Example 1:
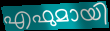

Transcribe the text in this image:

എഫുമായി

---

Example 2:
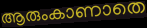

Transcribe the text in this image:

ആരുംകാണാതെ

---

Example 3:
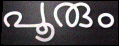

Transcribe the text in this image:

പൂരും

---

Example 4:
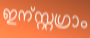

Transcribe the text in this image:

ഇന്സ്റ്റഗ്രാം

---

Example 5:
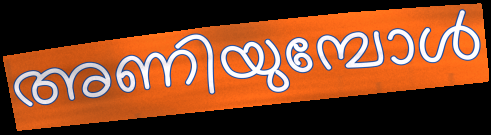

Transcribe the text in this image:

അണിയുമ്പോൾ